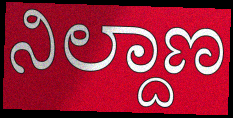
ನಿಲ್ದಾಣ